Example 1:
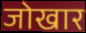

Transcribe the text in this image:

जोखार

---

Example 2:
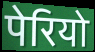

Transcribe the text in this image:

पेरियो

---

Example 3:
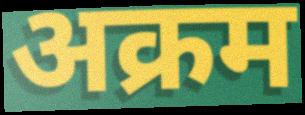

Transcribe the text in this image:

अक्रम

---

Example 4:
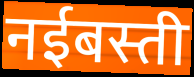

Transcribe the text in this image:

नईबस्ती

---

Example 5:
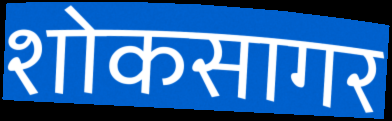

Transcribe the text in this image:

शोकसागर